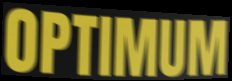
OPTIMUM